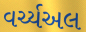
વર્ચ્યઅલ